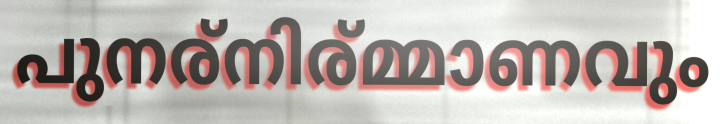
പുനര്നിര്മ്മാണവും